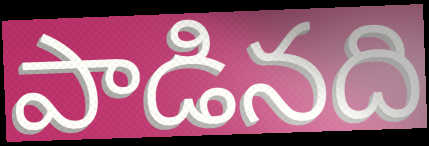
పాడినది